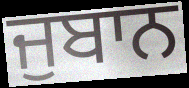
ਜੁਬਾਨ